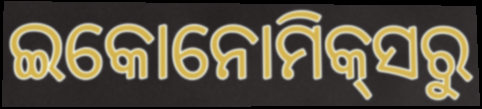
ଇକୋନୋମିକ୍‌ସରୁ